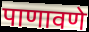
पाणावणे